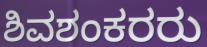
ಶಿವಶಂಕರರು